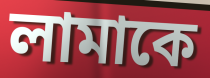
লামাকে